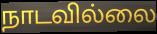
நாடவில்லை